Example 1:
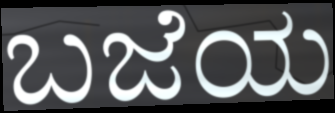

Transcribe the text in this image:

ಬಜೆಯ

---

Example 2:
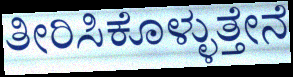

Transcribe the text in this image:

ತೀರಿಸಿಕೊಳ್ಳುತ್ತೇನೆ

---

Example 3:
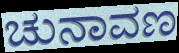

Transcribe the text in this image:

ಚುನಾವಣ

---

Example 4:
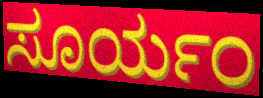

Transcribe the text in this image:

ಸೂರ್ಯಂ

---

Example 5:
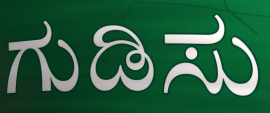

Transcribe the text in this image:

ಗುಡಿಸು